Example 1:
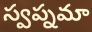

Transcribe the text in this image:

స్వప్నమా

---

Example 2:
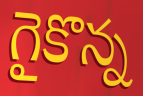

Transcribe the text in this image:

గైకొన్న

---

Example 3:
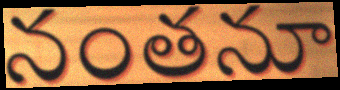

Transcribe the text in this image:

నంతనూ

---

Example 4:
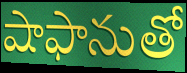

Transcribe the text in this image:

షాఫానుతో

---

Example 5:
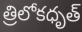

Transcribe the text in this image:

త్రిలోకధృత్